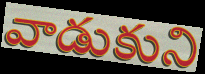
వాడుకుని